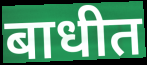
बाधीत